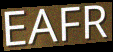
EAFR